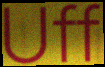
Uff